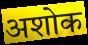
अशोक